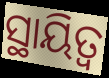
ସ୍ଥାୟିତ୍ୱ